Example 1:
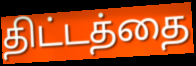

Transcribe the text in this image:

திட்டத்தை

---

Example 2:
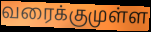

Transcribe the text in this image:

வரைக்குமுள்ள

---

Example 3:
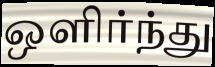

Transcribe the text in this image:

ஒளிர்ந்து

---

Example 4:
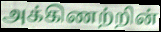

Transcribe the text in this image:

அக்கிணற்றின்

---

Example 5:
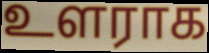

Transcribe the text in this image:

உளராக